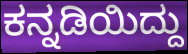
ಕನ್ನಡಿಯಿದ್ದು